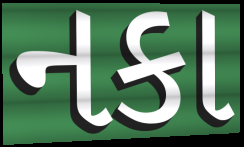
નકા